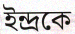
ইন্দ্রকে